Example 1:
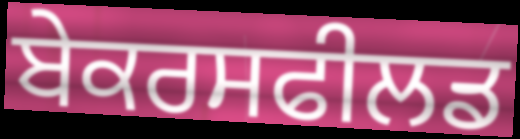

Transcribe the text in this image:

ਬੇਕਰਸਫੀਲਡ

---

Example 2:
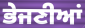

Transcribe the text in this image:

ਭੇਜਣੀਆਂ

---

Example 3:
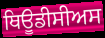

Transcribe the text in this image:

ਥਿਊਡੀਸੀਅਸ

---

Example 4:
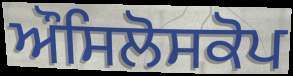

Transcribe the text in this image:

ਔਸਿਲੋਸਕੋਪ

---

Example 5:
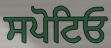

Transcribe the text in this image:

ਸਪੋਟਿਓ